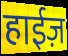
हाईज़